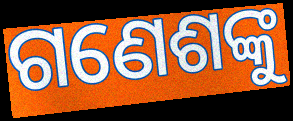
ଗଣେଶଙ୍କୁ